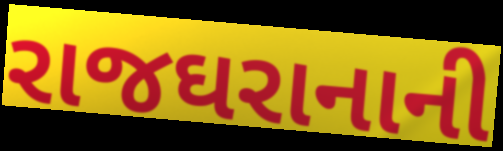
રાજઘરાનાની